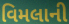
વિમલાની